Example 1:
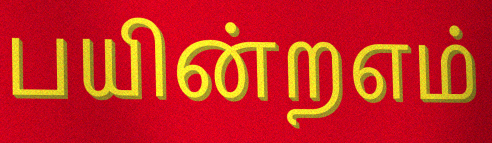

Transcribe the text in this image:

பயின்றஎம்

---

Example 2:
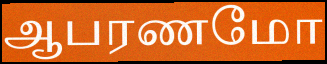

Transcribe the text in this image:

ஆபரணமோ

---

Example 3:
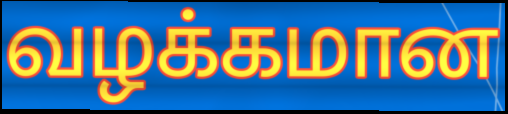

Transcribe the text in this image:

வழக்கமான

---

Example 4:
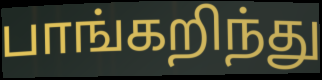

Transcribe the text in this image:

பாங்கறிந்து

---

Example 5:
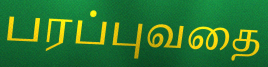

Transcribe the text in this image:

பரப்புவதை